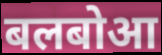
बलबोआ